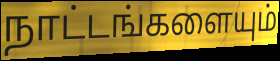
நாட்டங்களையும்